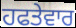
ਹਫਤੇਵਾਰ